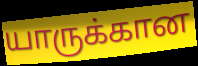
யாருக்கான